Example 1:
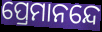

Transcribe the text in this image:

ପ୍ରେମାନନ୍ଦେ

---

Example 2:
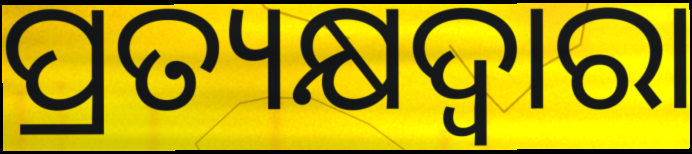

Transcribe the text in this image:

ପ୍ରତ୍ୟକ୍ଷଦ୍ବାରା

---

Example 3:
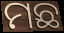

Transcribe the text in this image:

ମଛ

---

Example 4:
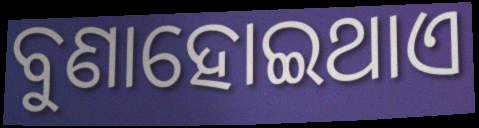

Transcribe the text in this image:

ବୁଣାହୋଇଥାଏ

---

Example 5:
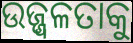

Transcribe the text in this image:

ଉଜ୍ଜ୍ୱଳତାକୁ